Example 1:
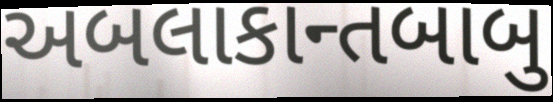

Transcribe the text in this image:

અબલાકાન્તબાબુ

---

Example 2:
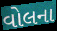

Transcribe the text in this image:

વોલના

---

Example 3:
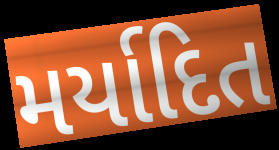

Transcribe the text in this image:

મર્યાદિત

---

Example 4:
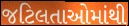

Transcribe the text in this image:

જટિલતાઓમાંથી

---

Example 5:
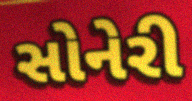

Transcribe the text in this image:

સોનેરી